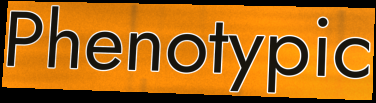
Phenotypic